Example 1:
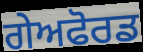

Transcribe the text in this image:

ਗੇਅਫੋਰਡ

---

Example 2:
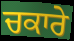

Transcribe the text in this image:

ਚਕਾਰੇ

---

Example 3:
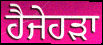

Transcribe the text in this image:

ਹੈਜੇਹੜਾ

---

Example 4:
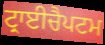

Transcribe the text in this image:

ਟ੍ਰਾਈਚੈਪਟਮ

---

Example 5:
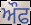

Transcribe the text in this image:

ਔਫ